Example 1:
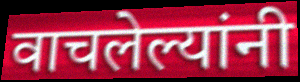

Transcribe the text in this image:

वाचलेल्यांनी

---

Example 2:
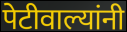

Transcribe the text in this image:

पेटीवाल्यांनी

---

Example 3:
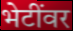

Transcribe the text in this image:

भेटींवर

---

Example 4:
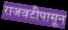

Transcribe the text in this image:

राजवटीपासून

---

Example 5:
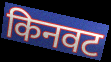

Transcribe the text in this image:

किनवट